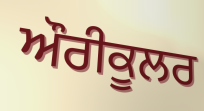
ਔਰੀਕੂਲਰ